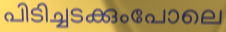
പിടിച്ചടക്കുംപോലെ